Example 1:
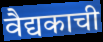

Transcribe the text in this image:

वैद्यकाची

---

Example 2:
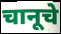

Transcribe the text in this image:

चानूचे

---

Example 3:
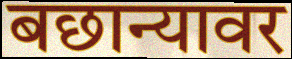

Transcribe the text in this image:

बछान्यावर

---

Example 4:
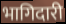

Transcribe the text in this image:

भागिदारी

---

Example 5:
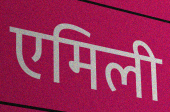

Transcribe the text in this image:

एमिली